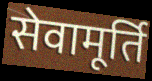
सेवामूर्ति